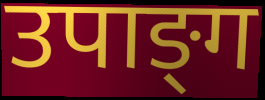
उपाङ्ग